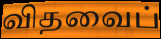
விதவைப்